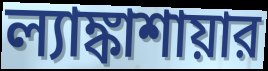
ল্যাঙ্কাশায়ার